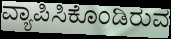
ವ್ಯಾಪಿಸಿಕೊಂಡಿರುವ